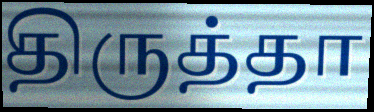
திருத்தா